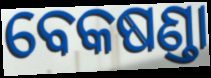
ବେକଷଣ୍ଡା